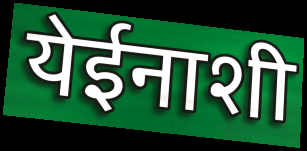
येईनाशी